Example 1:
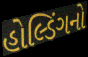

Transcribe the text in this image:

હોલ્ડિંગનો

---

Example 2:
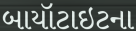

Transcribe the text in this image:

બાયૉટાઇટના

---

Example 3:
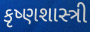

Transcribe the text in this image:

કૃષ્ણશાસ્ત્રી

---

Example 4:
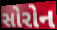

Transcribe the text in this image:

સોરોન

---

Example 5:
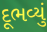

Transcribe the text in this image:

દૂભવ્યું